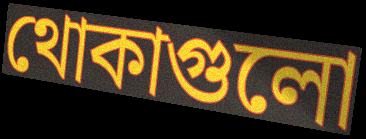
থোকাগুলো